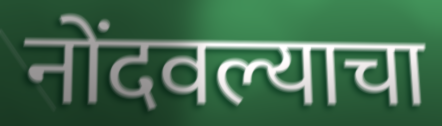
नोंदवल्याचा